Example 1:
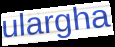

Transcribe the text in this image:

ulargha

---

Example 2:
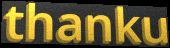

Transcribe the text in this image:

thanku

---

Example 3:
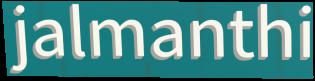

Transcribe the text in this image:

jalmanthi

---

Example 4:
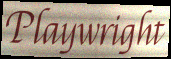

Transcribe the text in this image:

Playwright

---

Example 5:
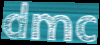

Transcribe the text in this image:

dmc